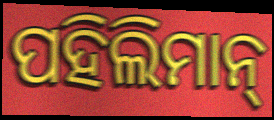
ପହିଲିମାନ୍